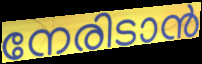
നേരിടാൻ